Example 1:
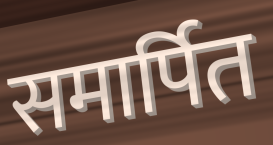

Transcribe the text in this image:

समार्पित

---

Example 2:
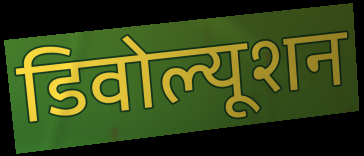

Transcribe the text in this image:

डिवोल्यूशन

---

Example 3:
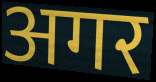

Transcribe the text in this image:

अगर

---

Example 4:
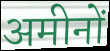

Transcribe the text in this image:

अमीनों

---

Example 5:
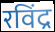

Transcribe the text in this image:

रविंद्र